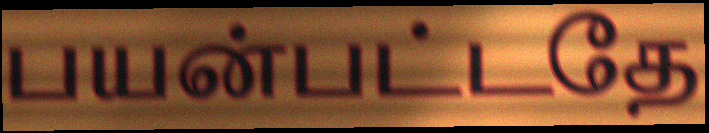
பயன்பட்டதே